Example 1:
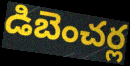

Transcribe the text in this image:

డిబెంచర్ల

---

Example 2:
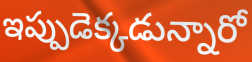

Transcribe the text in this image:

ఇప్పుడెక్కడున్నారో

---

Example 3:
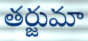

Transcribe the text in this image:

తర్జుమా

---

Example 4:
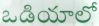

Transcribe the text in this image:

ఒడియాలో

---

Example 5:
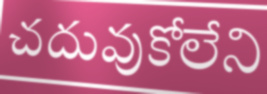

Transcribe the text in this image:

చదువుకోలేని